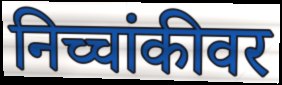
निच्चांकीवर